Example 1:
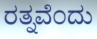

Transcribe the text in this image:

ರತ್ನವೆಂದು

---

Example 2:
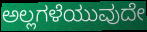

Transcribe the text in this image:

ಅಲ್ಲಗಳೆಯುವುದೇ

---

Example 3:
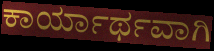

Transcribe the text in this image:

ಕಾರ್ಯಾರ್ಥವಾಗಿ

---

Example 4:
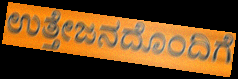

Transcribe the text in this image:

ಉತ್ತೇಜನದೊಂದಿಗೆ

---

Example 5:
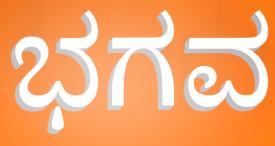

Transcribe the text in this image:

ಭಗವ